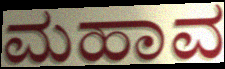
ಮಹಾವ